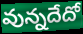
వున్నదేదో